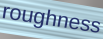
roughness